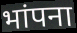
भांपना